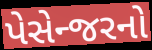
પેસેન્જરનો